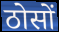
ठोसों